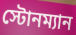
স্টোনম্যান